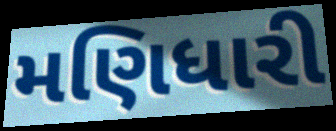
મણિધારી